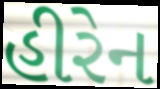
હીરેન